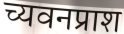
च्यवनप्राश